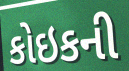
કોઇકની